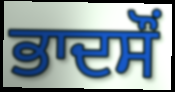
ਭਾਦਸੌਂ